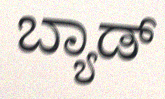
ಬ್ಯಾಡ್